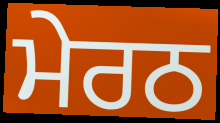
ਮੇਰਠ